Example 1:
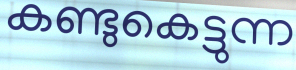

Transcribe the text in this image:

കണ്ടുകെട്ടുന്ന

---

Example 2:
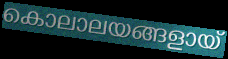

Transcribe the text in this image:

കൊലാലയങ്ങളായ്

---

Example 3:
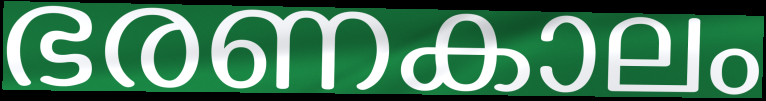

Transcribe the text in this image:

ഭരണകാലം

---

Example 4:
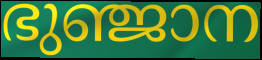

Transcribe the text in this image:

ഭുഞ്ജാന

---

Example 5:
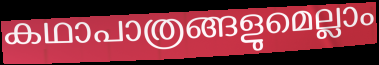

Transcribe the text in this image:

കഥാപാത്രങ്ങളുമെല്ലാം